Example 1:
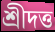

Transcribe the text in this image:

শ্রীদত্ত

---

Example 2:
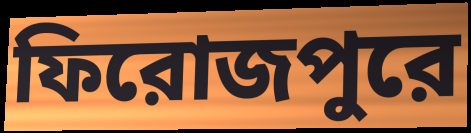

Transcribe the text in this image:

ফিরোজপুরে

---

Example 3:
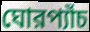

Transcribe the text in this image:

ঘোরপ্যাঁচ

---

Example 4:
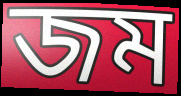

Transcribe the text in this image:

জম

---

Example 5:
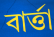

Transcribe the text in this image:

বার্ত্তা